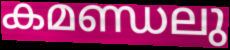
കമണ്ഡലു